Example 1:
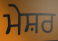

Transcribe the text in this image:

ਮੇਸ਼ਰ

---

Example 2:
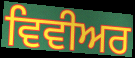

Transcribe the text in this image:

ਵਿਵੀਅਰ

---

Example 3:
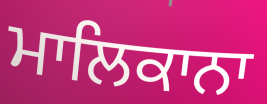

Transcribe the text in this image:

ਮਾਲਿਕਾਨਾ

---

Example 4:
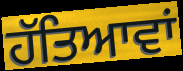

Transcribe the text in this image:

ਹੱਤਿਆਵਾਂ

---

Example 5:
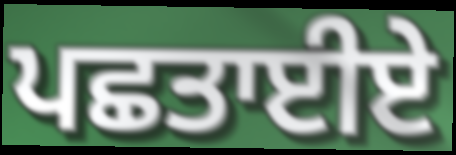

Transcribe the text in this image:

ਪਛਤਾਈਏ